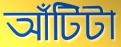
আঁটিটা